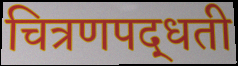
चित्रणपद्धती